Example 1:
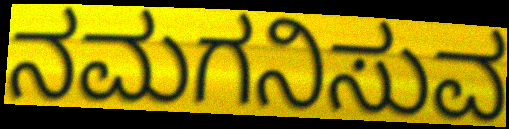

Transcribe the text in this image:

ನಮಗನಿಸುವ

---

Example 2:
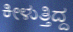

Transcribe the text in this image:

ಕೀಳುತ್ತಿದ್ದ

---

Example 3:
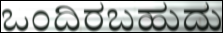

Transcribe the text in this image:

ಒಂದಿರಬಹುದು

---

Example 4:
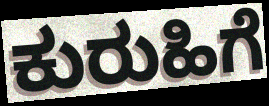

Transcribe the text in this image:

ಕುರುಹಿಗೆ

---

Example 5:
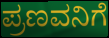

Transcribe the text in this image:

ಪ್ರಣವನಿಗೆ